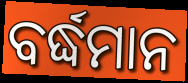
ବର୍ଦ୍ଧମାନ